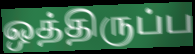
ஒத்திருப்ப